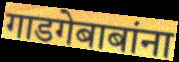
गाडगेबाबांना